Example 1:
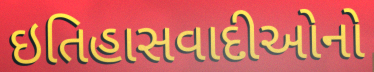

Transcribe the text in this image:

ઇતિહાસવાદીઓનો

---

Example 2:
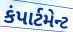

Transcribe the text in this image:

કંપાર્ટમેન્ટ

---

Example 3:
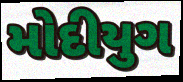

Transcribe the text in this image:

મોદીયુગ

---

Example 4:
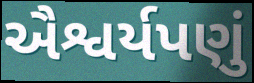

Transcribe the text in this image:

ઐશ્વર્યપણું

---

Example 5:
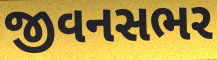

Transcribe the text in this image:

જીવનસભર